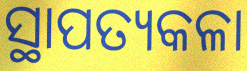
ସ୍ଥାପତ୍ୟକଳା